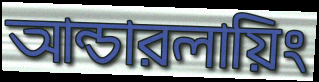
আন্ডারলায়িং